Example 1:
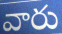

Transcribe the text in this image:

వారు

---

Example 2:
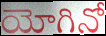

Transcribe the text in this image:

యోగినో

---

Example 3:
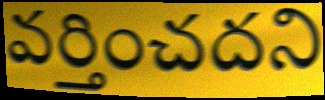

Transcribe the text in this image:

వర్తించదని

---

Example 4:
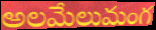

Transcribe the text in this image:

అలమేలుమంగ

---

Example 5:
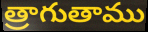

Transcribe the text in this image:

త్రాగుతాము